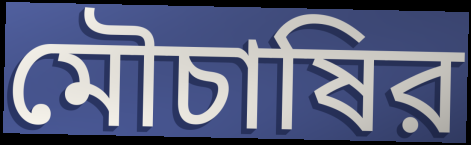
মৌচাষির